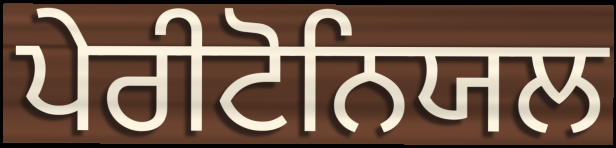
ਪੇਰੀਟੋਨਿਯਲ